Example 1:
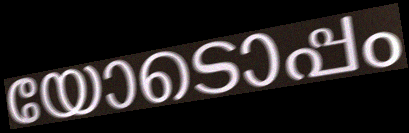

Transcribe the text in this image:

യോടൊപ്പം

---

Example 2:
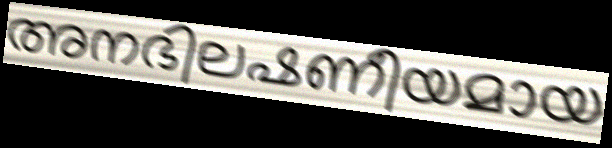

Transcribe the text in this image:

അനഭിലഷണീയമായ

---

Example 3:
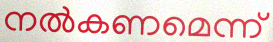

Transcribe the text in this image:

നൽകണമെന്ന്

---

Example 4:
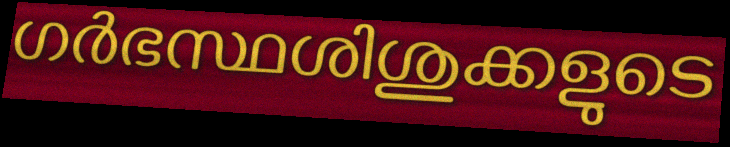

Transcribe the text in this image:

ഗർഭസ്ഥശിശുക്കളുടെ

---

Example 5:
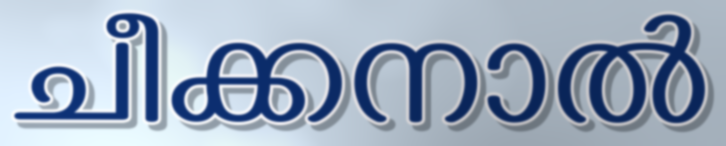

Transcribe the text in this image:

ചീക്കനാൽ